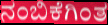
ನಂಬಿಕೆಗಿಂತ